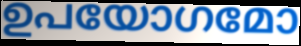
ഉപയോഗമോ